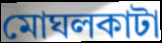
মোঘলকাটা